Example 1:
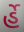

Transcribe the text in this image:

ર્હે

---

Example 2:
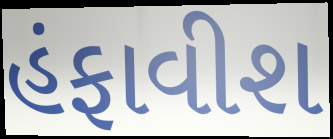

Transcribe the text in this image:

હંફાવીશ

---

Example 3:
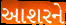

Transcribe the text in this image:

આશરને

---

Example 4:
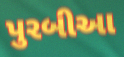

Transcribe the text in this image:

પુરબીઆ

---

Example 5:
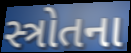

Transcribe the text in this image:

સ્ત્રોતના